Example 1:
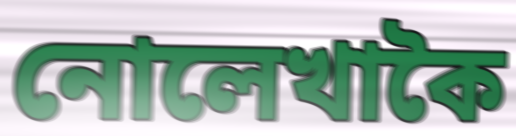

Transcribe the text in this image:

নোলেখাকৈ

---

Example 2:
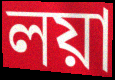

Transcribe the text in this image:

লয়া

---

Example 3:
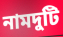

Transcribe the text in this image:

নামদুটি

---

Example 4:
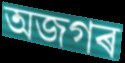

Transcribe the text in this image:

অজগৰ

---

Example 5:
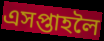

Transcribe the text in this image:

এসপ্তাহলৈ